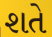
શતે